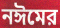
নঈমের